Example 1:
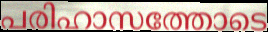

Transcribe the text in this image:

പരിഹാസത്തോടെ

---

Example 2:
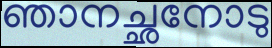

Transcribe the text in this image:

ഞാനച്ഛനോടു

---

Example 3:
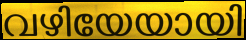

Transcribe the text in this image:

വഴിയേയായി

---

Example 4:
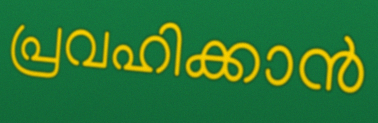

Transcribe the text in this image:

പ്രവഹിക്കാൻ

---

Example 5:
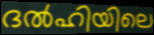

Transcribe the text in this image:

ദൽഹിയിലെ